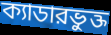
ক্যাডারভুক্ত